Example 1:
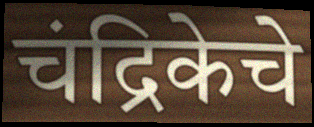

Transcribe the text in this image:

चंद्रिकेचे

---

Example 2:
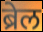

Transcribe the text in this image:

ब्रेल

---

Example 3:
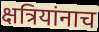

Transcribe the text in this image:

क्षत्रियांनाच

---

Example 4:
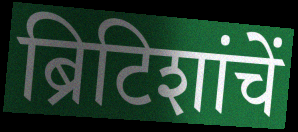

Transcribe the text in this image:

ब्रिटिशांचें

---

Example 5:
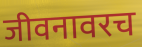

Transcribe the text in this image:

जीवनावरच